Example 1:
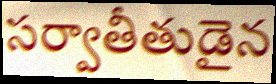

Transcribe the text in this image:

సర్వాతీతుడైన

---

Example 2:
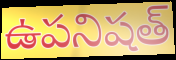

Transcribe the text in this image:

ఉపనిషత్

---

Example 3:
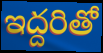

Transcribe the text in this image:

ఇద్దరితో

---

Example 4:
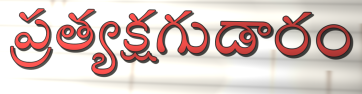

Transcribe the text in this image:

ప్రత్యక్షగుడారం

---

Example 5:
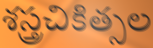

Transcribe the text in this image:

శస్త్రచికిత్సల